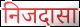
निजदासा